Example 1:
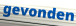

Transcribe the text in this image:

gevonden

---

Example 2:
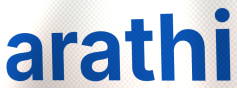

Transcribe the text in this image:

arathi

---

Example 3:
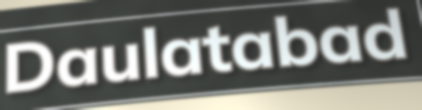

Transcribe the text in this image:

Daulatabad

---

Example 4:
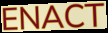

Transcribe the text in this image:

ENACT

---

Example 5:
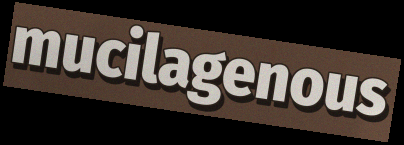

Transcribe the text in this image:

mucilagenous